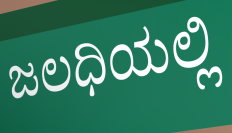
ಜಲಧಿಯಲ್ಲಿ